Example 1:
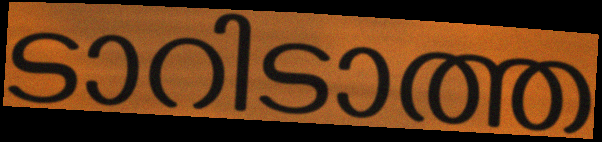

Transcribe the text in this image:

ടാറിടാത്ത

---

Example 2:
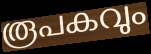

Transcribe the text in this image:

രൂപകവും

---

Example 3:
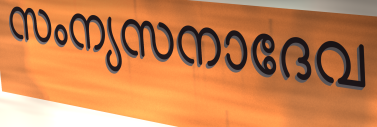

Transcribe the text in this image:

സംന്യസനാദേവ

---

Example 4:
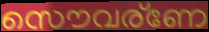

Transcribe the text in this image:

സൌവര്ണേ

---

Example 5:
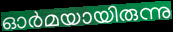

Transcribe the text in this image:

ഓർമയായിരുന്നു